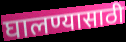
घालण्यासाठी